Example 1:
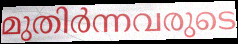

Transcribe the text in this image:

മുതിർന്നവരുടെ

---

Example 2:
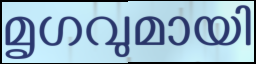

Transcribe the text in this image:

മൃഗവുമായി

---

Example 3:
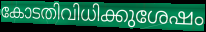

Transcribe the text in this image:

കോടതിവിധിക്കുശേഷം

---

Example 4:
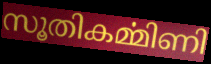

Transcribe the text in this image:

സൂതികൎമ്മിണി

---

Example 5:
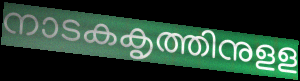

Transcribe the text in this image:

നാടകകൃത്തിനുളള